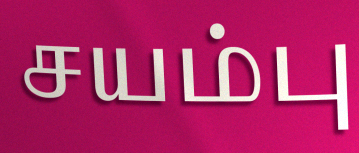
சயம்பு